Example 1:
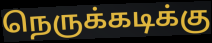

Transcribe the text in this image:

நெருக்கடிக்கு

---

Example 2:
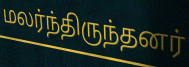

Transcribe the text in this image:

மலர்ந்திருந்தனர்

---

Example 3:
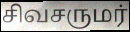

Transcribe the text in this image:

சிவசருமர்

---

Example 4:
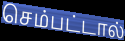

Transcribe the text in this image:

செம்பட்டால்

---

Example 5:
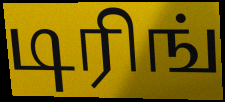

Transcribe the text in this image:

டிரிங்